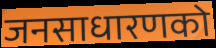
जनसाधारणको